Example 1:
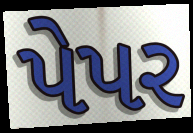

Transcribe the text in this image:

પેપર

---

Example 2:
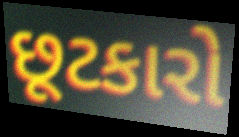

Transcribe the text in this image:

છૂટકારો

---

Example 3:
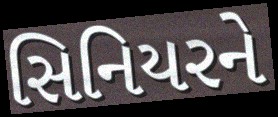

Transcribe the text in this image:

સિનિયરને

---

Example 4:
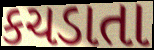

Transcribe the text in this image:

કચડાતા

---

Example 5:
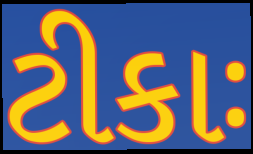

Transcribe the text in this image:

ટીકાઃ